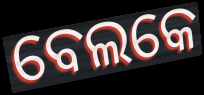
ବେଲକେ